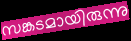
സങ്കടമായിരുന്നു